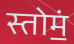
स्तोमं॒